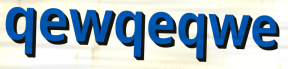
qewqeqwe